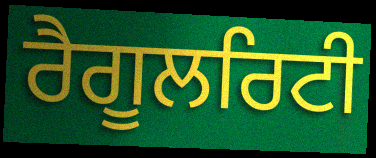
ਰੈਗੂਲਰਿਟੀ